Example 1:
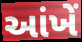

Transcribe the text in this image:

આંખેં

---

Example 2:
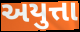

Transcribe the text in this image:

અયુત્તા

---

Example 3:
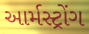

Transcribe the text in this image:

આર્મસ્ટ્રોંગ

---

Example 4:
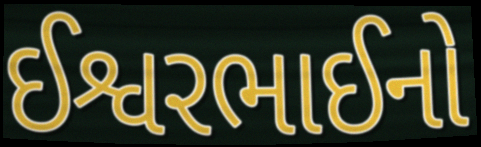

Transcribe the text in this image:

ઈશ્વરભાઈનો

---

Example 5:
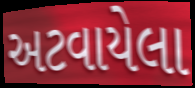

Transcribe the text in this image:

અટવાયેલા